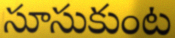
సూసుకుంట